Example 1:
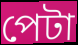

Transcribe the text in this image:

পেটা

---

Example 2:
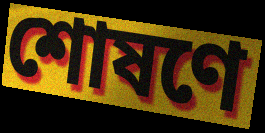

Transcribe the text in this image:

শোষণে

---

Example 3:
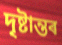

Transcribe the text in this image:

দৃষ্টান্তৰ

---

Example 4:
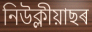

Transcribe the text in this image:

নিউক্লীয়াছৰ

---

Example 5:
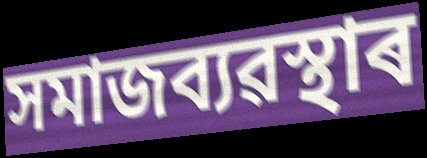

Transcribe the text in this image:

সমাজব্যৱস্থাৰ